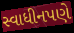
સ્વાધીનપણે